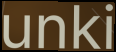
unki